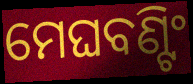
ମେଘବଣ୍ଟିଂ